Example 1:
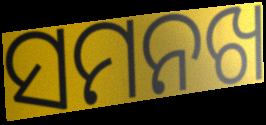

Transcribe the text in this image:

ସମନଖ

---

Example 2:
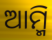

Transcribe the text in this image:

ଆମ୍ମି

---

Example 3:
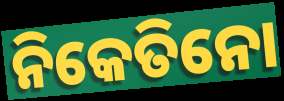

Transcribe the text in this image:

ନିକେତିନୋ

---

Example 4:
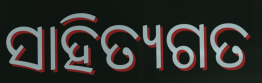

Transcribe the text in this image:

ସାହିତ୍ୟଗତ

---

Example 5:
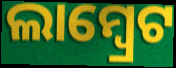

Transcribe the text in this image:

ଲାମ୍ୱ୍ରେଟ